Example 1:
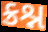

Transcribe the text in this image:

ક્રશ્ન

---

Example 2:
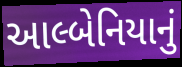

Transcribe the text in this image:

આલ્બેનિયાનું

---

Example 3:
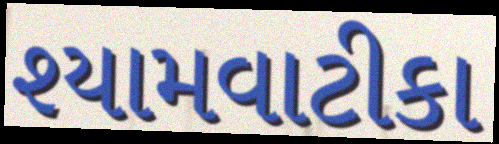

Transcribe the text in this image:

શ્યામવાટીકા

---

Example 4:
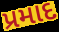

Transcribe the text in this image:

પ્રમાદ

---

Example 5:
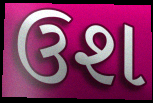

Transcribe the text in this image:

ઉશ